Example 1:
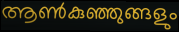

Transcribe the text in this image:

ആൺകുഞ്ഞുങ്ങളും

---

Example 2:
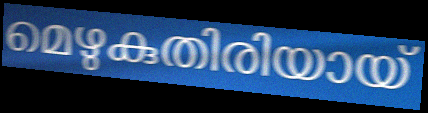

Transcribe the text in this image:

മെഴുകുതിരിയായ്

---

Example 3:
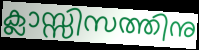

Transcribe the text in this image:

ക്ലാസ്സിസത്തിനു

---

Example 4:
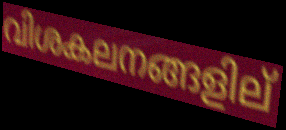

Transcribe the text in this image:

വിശകലനങ്ങളില്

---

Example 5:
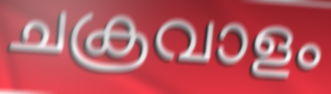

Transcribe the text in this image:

ചക്രവാളം